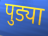
पुड्या